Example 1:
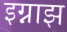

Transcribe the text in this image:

इग्नाझ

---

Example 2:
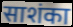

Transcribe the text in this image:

साशंका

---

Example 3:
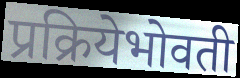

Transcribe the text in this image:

प्रक्रियेभोवती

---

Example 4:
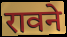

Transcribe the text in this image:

रावने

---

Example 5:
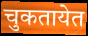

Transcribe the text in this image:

चुकतायेत